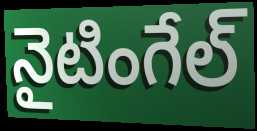
నైటింగేల్